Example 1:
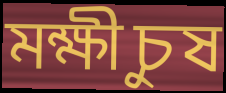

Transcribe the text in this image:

মক্ষীচুষ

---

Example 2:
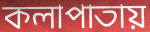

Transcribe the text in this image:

কলাপাতায়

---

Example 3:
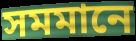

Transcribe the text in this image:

সমমানে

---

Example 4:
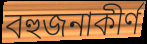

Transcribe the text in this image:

বহুজনাকীর্ণ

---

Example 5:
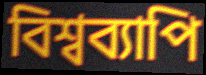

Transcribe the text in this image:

বিশ্বব্যাপি